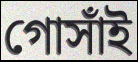
গোসাঁই